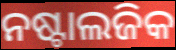
ନଷ୍ଟାଲଜିକ